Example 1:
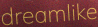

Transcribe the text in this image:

dreamlike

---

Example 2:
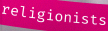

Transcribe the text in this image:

religionists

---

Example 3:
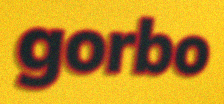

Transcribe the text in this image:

gorbo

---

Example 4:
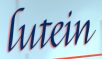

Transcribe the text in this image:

lutein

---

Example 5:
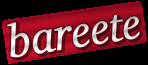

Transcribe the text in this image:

bareete